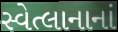
સ્વેત્લાનાનાં